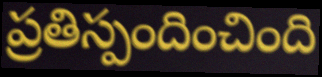
ప్రతిస్పందించింది